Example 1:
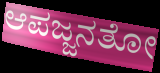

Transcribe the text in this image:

ಆಪಜ್ಜನತೋ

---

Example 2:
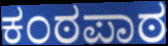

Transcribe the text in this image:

ಕಂಠಪಾಠ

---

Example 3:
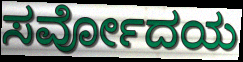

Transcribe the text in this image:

ಸರ್ವೋದಯ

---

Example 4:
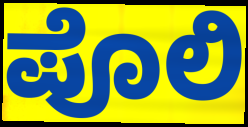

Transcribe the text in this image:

ಪೊಲಿ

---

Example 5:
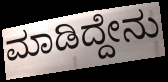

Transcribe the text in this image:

ಮಾಡಿದ್ದೇನು